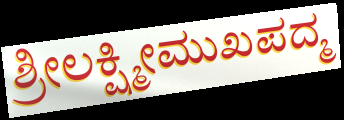
ಶ್ರೀಲಕ್ಷ್ಮೀಮುಖಪದ್ಮ